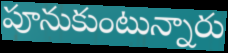
పూనుకుంటున్నారు